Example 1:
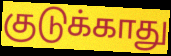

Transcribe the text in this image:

குடுக்காது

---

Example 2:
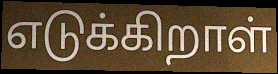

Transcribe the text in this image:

எடுக்கிறாள்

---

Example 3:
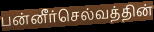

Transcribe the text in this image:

பன்னீர்செல்வத்தின்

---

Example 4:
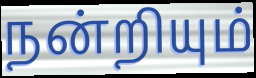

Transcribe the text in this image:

நன்றியும்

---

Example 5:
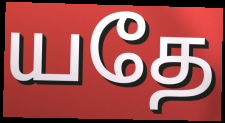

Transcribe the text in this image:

யதே